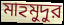
মাহমুদুর